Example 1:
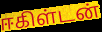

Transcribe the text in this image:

ஈகிள்டன்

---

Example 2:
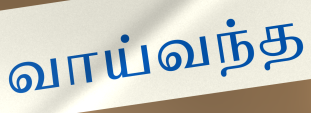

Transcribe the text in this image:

வாய்வந்த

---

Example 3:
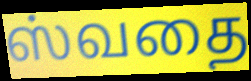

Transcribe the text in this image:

ஸ்வதை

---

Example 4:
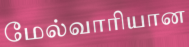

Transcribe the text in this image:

மேல்வாரியான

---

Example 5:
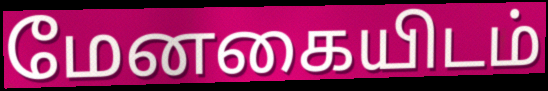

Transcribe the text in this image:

மேனகையிடம்